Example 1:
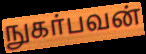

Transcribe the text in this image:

நுகர்பவன்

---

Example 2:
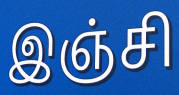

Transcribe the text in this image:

இஞ்சி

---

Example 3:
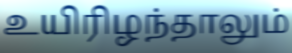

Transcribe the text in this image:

உயிரிழந்தாலும்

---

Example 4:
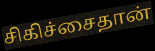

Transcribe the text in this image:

சிகிச்சைதான்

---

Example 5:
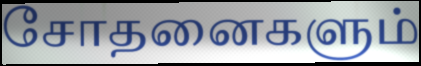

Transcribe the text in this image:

சோதனைகளும்